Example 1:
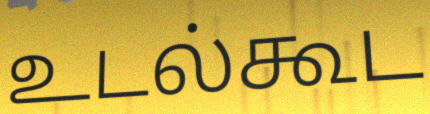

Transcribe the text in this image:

உடல்கூட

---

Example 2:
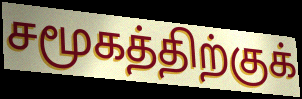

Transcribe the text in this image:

சமூகத்திற்குக்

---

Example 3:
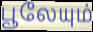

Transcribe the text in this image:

பூலேயும்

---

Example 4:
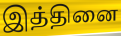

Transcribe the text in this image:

இத்தினை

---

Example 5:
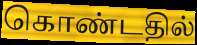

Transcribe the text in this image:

கொண்டதில்